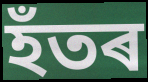
হঁতৰ